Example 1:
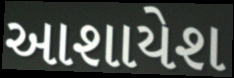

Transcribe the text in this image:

આશાયેશ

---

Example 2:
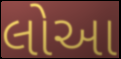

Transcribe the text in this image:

લોઆ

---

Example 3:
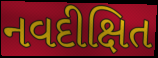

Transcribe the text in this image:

નવદીક્ષિત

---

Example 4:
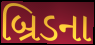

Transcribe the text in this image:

બ્રિડના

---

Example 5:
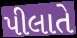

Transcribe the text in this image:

પીલાતે